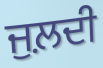
ਜੁਲ਼ਦੀ